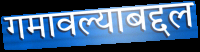
गमावल्याबद्दल